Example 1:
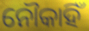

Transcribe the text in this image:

ନୌକାହିଁ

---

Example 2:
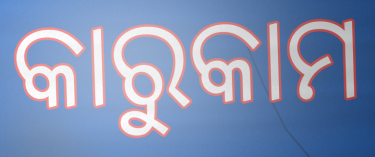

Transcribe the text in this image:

କାରୁକାମ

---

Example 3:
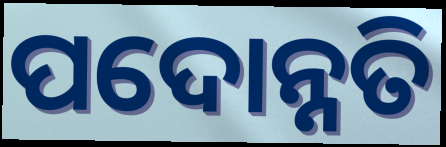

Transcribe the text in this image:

ପଦୋନ୍ନତି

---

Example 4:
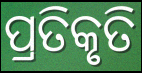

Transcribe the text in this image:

ପ୍ରତିକୃତି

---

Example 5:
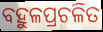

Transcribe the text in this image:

ବହୁଳପ୍ରଚଳିତ